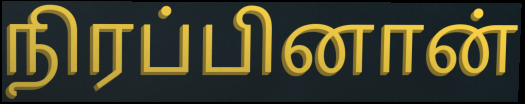
நிரப்பினான்